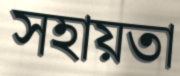
সহায়তা